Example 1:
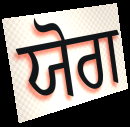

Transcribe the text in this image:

ਯੋਗ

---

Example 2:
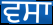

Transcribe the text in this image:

ਵਸਾ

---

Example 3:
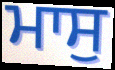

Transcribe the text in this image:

ਮਾਸੁ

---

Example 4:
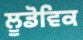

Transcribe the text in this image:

ਲੂਡੋਵਿਕ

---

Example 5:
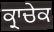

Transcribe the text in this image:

ਕ੍ਰਾਚੇਕ